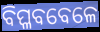
ବିପ୍ଳବବେଳେ